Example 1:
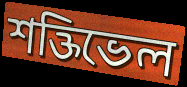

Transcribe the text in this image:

শক্তিভেল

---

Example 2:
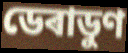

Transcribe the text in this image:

ডেৰাডুণ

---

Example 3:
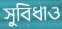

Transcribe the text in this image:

সুবিধাও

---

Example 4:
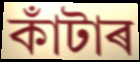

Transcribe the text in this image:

কাঁটাৰ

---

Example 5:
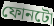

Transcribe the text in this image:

ফোনটো